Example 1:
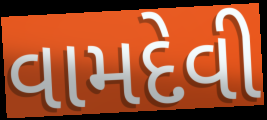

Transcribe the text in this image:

વામદેવી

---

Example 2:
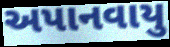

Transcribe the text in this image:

અપાનવાયુ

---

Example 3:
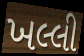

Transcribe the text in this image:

ખલ્લી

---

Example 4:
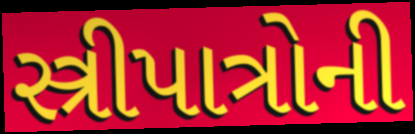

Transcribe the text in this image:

સ્ત્રીપાત્રોની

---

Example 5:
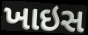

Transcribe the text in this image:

ખાઇસ